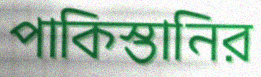
পাকিস্তানির